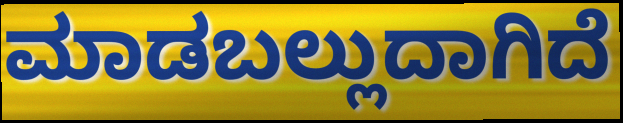
ಮಾಡಬಲ್ಲುದಾಗಿದೆ